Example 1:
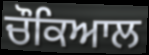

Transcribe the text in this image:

ਚੌਕਿਆਲ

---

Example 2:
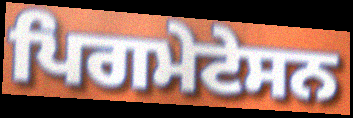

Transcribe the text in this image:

ਪਿਗਮੇਟੇਸਨ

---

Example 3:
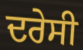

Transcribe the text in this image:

ਦਰੇਸੀ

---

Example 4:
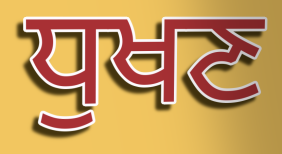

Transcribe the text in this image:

ਧੁਖਣ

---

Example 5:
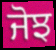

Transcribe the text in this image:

ਜੋਝ